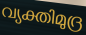
വ്യക്തിമുദ്ര